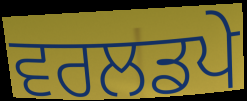
ਵਰਲਡਪੇ